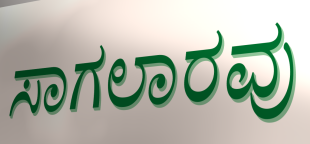
ಸಾಗಲಾರವು